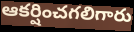
ఆకర్షించగలిగారు